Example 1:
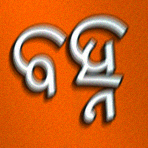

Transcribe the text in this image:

ବହ୍ନ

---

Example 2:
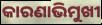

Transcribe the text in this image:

କାରଣାଭିମୁଖୀ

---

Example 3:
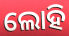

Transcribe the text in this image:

ଲୋହି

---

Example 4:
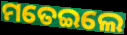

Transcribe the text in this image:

ମତେଇଲେ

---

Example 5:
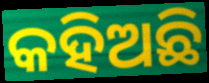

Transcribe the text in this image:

କହିଅଛି